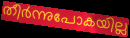
തീർന്നുപോകയില്ല